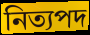
নিত্যপদ